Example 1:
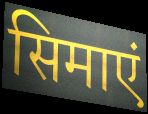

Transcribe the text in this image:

सिमाएं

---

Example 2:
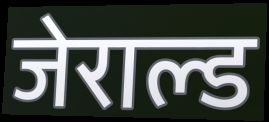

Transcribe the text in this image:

जेराल्ड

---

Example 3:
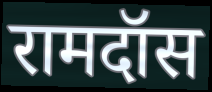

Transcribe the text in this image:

रामदॉस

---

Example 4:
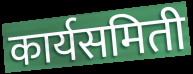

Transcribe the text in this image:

कार्यसमिती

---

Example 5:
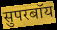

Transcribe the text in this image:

सुपरबॉय